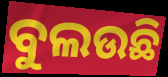
ବୁଲଉଛି